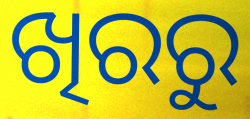
ଖିରରୁ